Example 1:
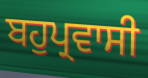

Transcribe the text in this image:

ਬਹੁਪ੍ਰਵਾਸੀ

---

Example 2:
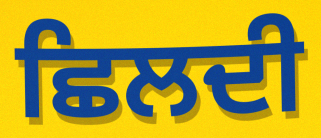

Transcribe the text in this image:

ਛਿਲਦੀ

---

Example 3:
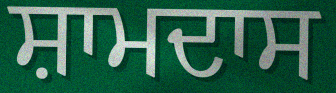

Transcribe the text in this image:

ਸ਼ਾਮਦਾਸ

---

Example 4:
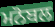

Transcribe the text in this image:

ਮਨੋਬਲ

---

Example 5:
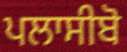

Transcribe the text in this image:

ਪਲਾਸੀਬੋ